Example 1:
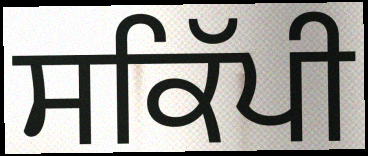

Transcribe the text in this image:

ਸਕਿੱਪੀ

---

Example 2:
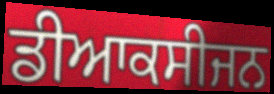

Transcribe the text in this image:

ਡੀਆਕਸੀਜਨ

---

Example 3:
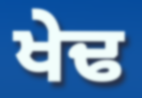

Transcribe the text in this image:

ਖੇਢ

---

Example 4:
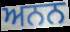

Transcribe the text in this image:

ਅਨਨ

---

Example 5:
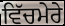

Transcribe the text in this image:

ਵਿੱਚਮੇਰੇ